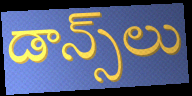
డాన్స్‌లు